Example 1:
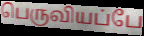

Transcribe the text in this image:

பெருவியப்பே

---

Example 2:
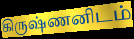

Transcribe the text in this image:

கிருஷ்ணனிடம்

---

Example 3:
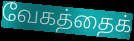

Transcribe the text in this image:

வேகத்தைக்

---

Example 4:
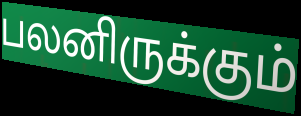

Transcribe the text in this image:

பலனிருக்கும்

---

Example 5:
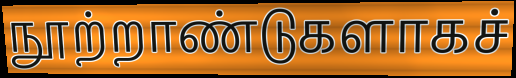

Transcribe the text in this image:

நூற்றாண்டுகளாகச்